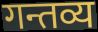
गन्तव्य